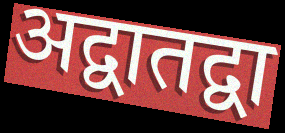
अद्वातद्वा